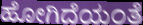
ಹೋಗಿದೆಯಂತೆ